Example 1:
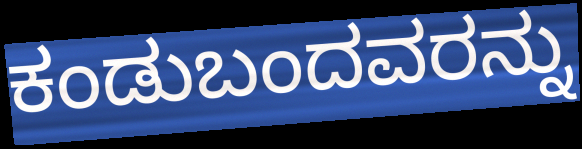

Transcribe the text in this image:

ಕಂಡುಬಂದವರನ್ನು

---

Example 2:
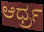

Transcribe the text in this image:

ಆರ್ಧ್ರ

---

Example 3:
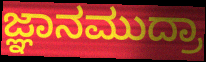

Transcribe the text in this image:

ಜ್ಞಾನಮುದ್ರಾ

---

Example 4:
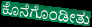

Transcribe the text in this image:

ಕೊನೆಗೊಂಡೀತು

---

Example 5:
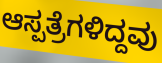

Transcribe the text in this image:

ಆಸ್ಪತ್ರೆಗಳಿದ್ದವು